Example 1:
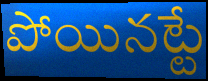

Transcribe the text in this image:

పోయినట్టే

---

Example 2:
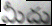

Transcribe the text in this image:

మీదు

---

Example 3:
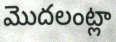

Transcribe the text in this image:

మొదలంట్లా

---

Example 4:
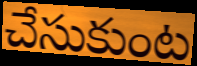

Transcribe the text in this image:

చేసుకుంట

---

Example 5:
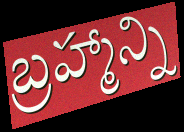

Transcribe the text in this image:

బ్రహ్మాన్ని